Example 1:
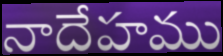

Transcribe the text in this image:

నాదేహము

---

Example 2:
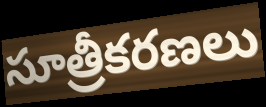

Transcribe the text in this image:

సూత్రీకరణలు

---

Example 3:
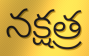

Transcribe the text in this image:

నక్షత్ర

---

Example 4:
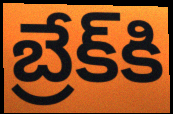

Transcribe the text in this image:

బ్రేక్‌కి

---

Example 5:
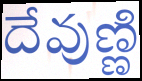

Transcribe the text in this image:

దేవుణ్ణి